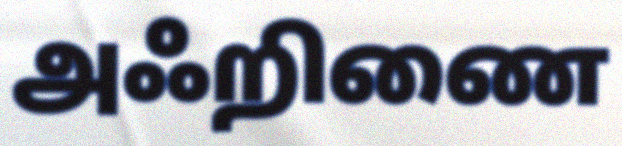
அஃறிணை